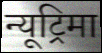
न्यूट्रिमा